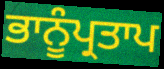
ਭਾਨੂੰਪ੍ਰਤਾਪ